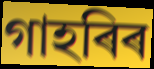
গাহৰিৰ